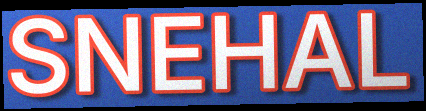
SNEHAL